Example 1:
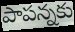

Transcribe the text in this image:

పాపన్నకు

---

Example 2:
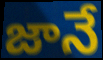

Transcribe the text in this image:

జానే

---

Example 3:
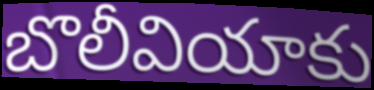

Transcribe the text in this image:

బొలీవియాకు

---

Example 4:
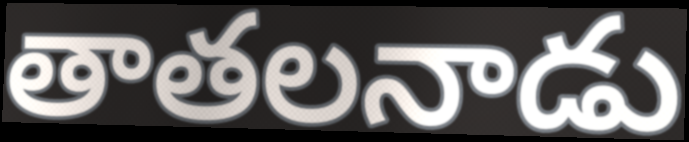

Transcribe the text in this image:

తాతలనాడు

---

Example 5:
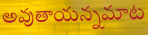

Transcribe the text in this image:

అవుతాయన్నమాట